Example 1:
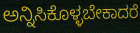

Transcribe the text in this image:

ಅನ್ನಿಸಿಕೊಳ್ಳಬೇಕಾದರೆ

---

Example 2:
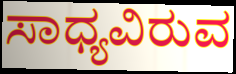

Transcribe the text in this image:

ಸಾಧ್ಯವಿರುವ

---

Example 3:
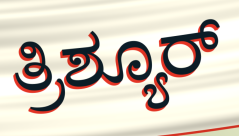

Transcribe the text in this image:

ತ್ರಿಶ್ಯೂರ್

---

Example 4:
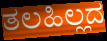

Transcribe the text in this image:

ತಲಹಿಲ್ಲದ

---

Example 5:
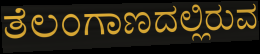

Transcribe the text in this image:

ತೆಲಂಗಾಣದಲ್ಲಿರುವ